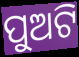
ପୁଅଟି